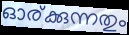
ഓര്ക്കുന്നതും